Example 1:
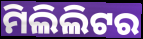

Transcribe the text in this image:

ମିଲିଲିଟର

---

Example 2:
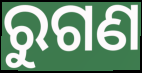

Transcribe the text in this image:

ରୁଗଣ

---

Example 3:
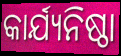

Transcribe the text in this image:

କାର୍ଯ୍ୟନିଷ୍ଠା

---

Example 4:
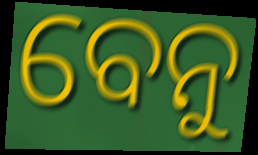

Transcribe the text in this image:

ବେନୁ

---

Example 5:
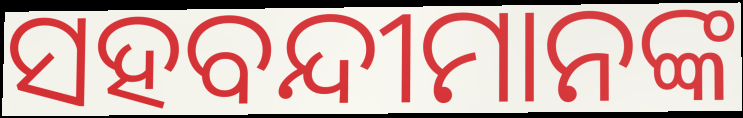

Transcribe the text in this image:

ସହବନ୍ଦୀମାନଙ୍କ